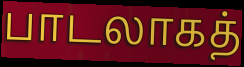
பாடலாகத்